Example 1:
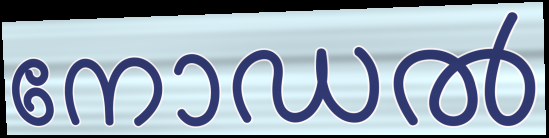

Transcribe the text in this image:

നോഡൽ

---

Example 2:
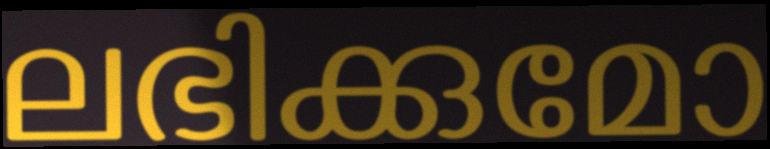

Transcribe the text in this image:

ലഭിക്കുമോ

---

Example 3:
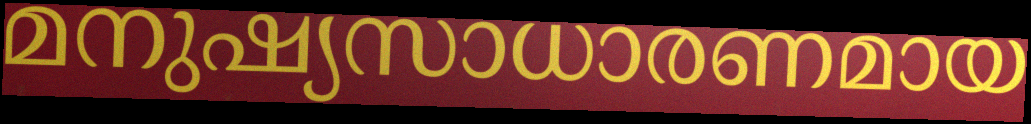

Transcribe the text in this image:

മനുഷ്യസാധാരണമായ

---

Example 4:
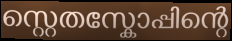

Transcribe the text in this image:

സ്റ്റെതസ്കോപ്പിന്റെ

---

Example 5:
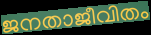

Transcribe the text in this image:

ജനതാജീവിതം